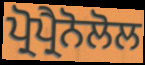
ਪ੍ਰੋਪ੍ਰੈਨੋਲੋਲ